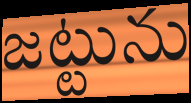
జట్టును